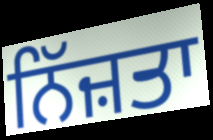
ਨਿੱਜ਼ਤਾ